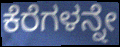
ಕೆರೆಗಳನ್ನೇ